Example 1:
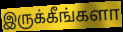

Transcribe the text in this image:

இருக்கீங்களா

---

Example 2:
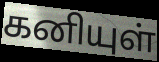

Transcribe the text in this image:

கனியுள்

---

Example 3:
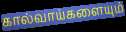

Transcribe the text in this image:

கால்வாய்களையும்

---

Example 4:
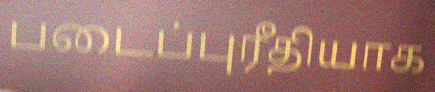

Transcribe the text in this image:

படைப்புரீதியாக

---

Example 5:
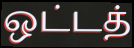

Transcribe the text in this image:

ஒட்டத்